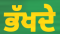
ਭੱਖਦੇ